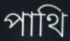
পাথি